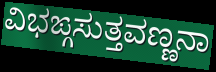
ವಿಭಙ್ಗಸುತ್ತವಣ್ಣನಾ